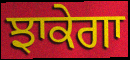
ਝਾਕੇਗਾ